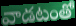
వాడటంతో